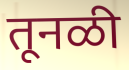
तूनळी